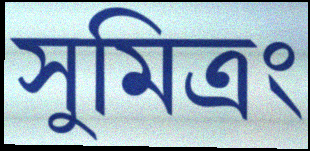
সুমিত্রং